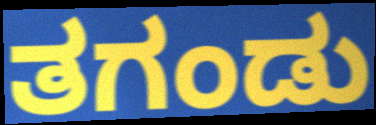
ತಗಂಡು